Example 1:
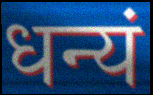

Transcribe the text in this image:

धन्यं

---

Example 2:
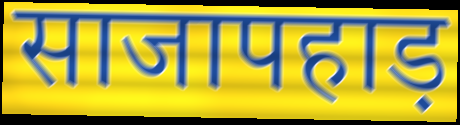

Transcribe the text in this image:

साजापहाड़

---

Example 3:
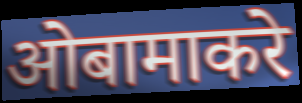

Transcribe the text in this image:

ओबामाकरे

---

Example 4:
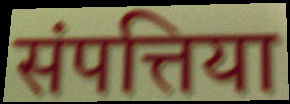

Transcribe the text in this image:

संपत्तिया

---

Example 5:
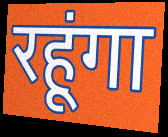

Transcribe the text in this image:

रहूंगा